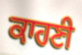
ਕਾਹਣੀ